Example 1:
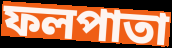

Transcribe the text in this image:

ফলপাতা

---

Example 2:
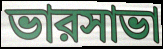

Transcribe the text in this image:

ভারসাভা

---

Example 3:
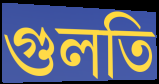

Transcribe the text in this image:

গুলতি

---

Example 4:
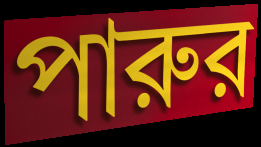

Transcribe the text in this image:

পারুর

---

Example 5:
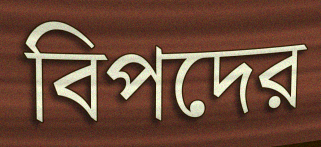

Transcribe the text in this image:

বিপদের